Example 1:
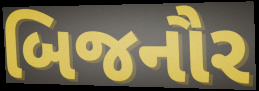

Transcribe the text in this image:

બિજનૌર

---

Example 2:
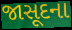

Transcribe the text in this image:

જાસૂદના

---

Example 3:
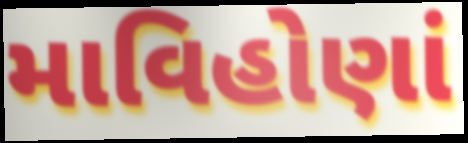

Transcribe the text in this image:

માવિહોણાં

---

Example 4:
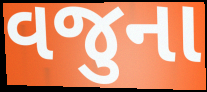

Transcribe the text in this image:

વજુના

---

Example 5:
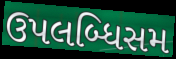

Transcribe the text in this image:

ઉપલબ્ધિસમ